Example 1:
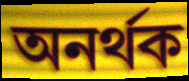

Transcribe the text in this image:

অনর্থক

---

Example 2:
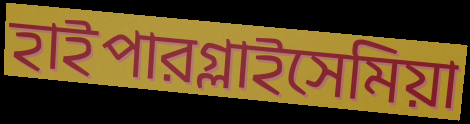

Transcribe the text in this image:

হাইপারগ্লাইসেমিয়া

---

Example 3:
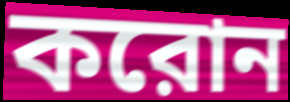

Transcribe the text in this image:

করোন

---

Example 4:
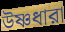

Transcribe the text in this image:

উষ্ণধারা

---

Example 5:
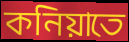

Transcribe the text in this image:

কনিয়াতে